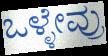
ಒಳ್ಳೇವ್ರು